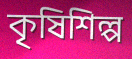
কৃষিশিল্প